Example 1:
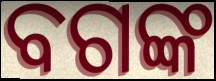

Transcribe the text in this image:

ବଗଙ୍କ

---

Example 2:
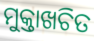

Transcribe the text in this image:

ମୁକ୍ତାଖଚିତ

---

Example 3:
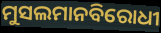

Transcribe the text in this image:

ମୁସଲମାନବିରୋଧୀ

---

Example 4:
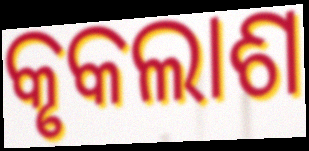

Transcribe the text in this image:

କୃକଲାଶ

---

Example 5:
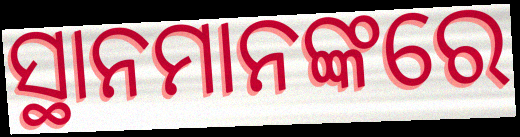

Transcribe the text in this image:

ସ୍ଥାନମାନଙ୍କରେ